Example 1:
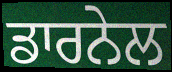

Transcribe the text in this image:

ਡਾਰਨੇਲ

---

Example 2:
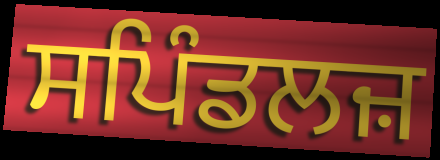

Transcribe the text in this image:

ਸਪਿੰਡਲਜ਼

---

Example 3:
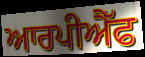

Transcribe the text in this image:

ਆਰਪੀਐੱਫ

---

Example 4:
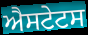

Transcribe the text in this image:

ਐਸਟੇਟਸ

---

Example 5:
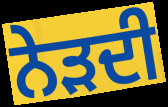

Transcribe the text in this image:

ਨੇੜਦੀ